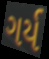
ગર્ય